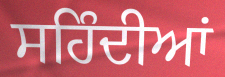
ਸਹਿੰਦੀਆਂ